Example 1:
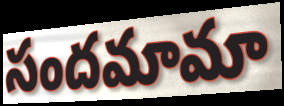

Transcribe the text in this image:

సందమామా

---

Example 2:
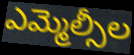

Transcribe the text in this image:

ఎమ్మెల్సీల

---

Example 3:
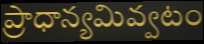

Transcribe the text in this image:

ప్రాధాన్యమివ్వటం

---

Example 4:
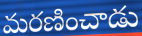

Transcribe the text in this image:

మరణించాడు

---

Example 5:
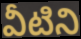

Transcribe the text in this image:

వీటిని